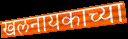
खलनायकाच्या